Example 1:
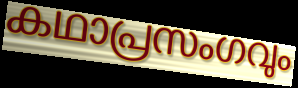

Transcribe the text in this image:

കഥാപ്രസംഗവും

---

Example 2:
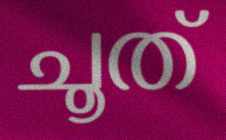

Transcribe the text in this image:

ചൂത്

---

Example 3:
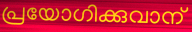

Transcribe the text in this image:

പ്രയോഗിക്കുവാന്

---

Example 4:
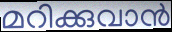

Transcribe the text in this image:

മറിക്കുവാൻ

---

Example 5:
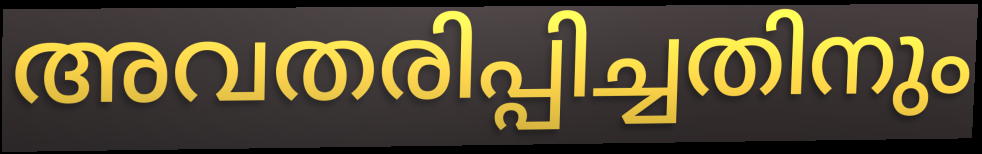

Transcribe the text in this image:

അവതരിപ്പിച്ചതിനും